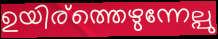
ഉയിര്ത്തെഴുന്നേല്പു